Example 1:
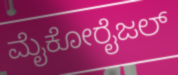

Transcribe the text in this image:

ಮೈಕೋರೈಜಲ್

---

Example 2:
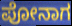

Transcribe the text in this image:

ಪೋನಾಗ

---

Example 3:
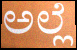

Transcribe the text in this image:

ಅಲ್ಲೆ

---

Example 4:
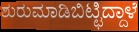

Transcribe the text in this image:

ಶುರುಮಾಡಿಬಿಟ್ಟಿದ್ದಾಳೆ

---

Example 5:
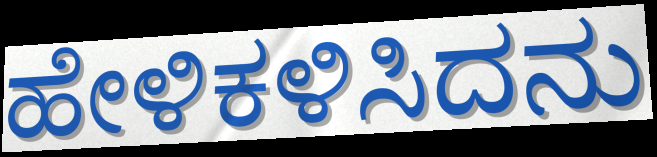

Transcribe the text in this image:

ಹೇಳಿಕಳಿಸಿದನು